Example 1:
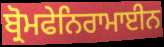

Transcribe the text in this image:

ਬ੍ਰੋਮਫੇਨਿਰਾਮਾਈਨ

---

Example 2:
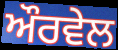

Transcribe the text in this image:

ਔਰਵੇਲ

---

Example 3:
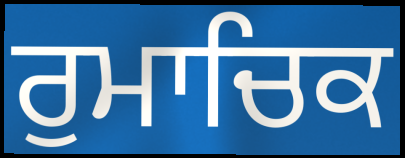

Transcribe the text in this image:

ਰੁਮਾਚਿਕ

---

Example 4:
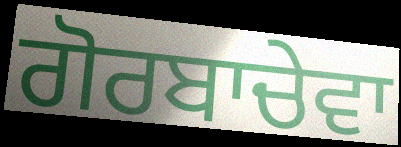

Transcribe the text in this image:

ਗੋਰਬਾਚੇਵਾ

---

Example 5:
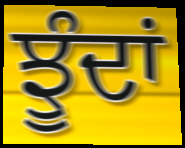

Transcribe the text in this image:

ਝੂੰਦਾਂ